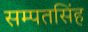
सम्पतसिंह